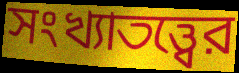
সংখ্যাতত্ত্বের